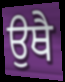
ਉਥੈ